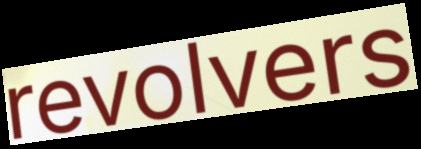
revolvers